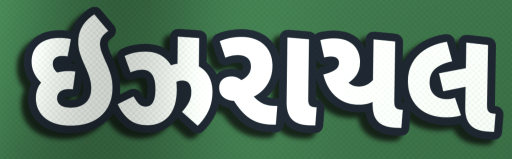
ઇઝરાયલ